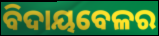
ବିଦାୟବେଳର